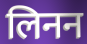
लिनन